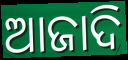
ଆଜାଦି